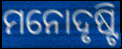
ମନୋଦୃଷ୍ଟି